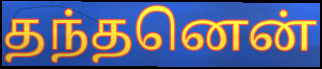
தந்தனென்